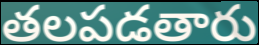
తలపడతారు